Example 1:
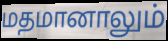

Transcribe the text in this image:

மதமானாலும்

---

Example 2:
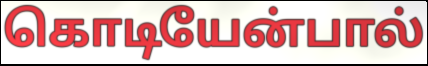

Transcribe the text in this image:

கொடியேன்பால்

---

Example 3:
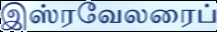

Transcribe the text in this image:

இஸ்ரவேலரைப்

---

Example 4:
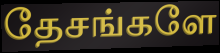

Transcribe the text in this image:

தேசங்களே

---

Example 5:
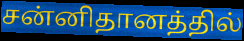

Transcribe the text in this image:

சன்னிதானத்தில்